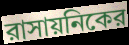
রাসায়নিকের